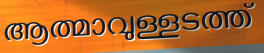
ആത്മാവുള്ളടത്ത്